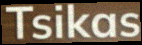
Tsikas